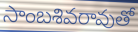
సాంబశివరావుతో